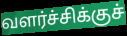
வளர்ச்சிக்குச்